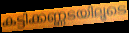
കട്ടിക്കണ്ണടയിലൂടെ